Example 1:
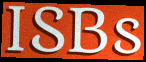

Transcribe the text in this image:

ISBs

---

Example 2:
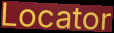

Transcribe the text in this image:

Locator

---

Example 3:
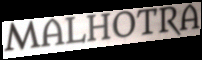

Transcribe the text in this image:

MALHOTRA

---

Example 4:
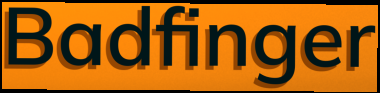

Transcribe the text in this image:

Badfinger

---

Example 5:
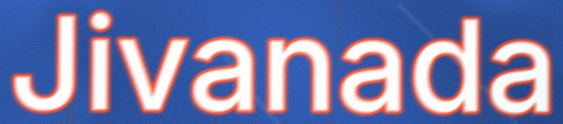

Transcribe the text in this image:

Jivanada